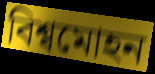
বিশ্বমোহন